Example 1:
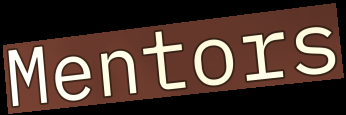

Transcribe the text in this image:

Mentors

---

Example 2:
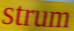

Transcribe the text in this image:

strum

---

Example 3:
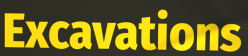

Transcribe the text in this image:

Excavations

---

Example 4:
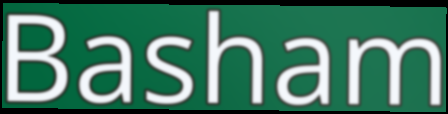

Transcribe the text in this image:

Basham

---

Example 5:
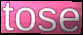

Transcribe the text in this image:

tose